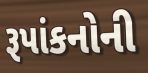
રૂપાંકનોની